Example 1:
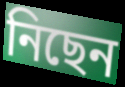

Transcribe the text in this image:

নিছেন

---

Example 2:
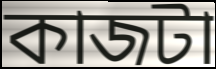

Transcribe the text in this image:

কাজটা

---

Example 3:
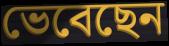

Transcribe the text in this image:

ভেবেছেন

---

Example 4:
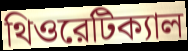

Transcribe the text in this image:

থিওরেটিক্যাল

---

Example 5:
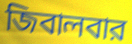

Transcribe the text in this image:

জিবালবার